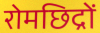
रोमछिद्रों